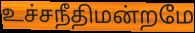
உச்சநீதிமன்றமே